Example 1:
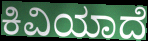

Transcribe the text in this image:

ಕಿವಿಯಾದೆ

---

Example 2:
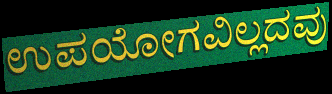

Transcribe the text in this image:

ಉಪಯೋಗವಿಲ್ಲದವು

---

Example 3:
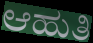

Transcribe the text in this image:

ಆಹುತಿ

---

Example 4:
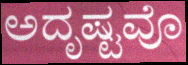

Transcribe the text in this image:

ಅದೃಷ್ಟವೊ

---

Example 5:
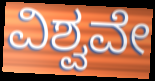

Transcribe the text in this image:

ವಿಶ್ವವೇ